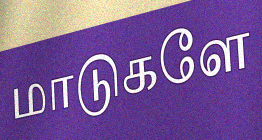
மாடுகளே